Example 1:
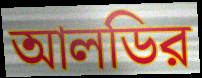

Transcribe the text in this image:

আলডির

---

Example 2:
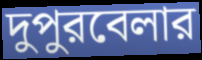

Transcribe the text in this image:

দুপুরবেলার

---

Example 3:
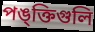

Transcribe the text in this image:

পঙ্ক্তিগুলি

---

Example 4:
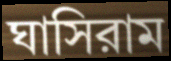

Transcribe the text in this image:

ঘাসিরাম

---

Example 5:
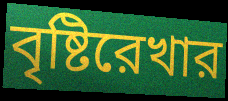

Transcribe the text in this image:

বৃষ্টিরেখার